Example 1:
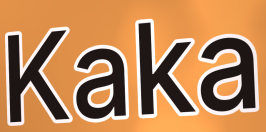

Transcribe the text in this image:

Kaka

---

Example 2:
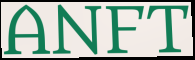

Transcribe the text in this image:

ANFT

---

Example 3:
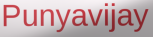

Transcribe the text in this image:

Punyavijay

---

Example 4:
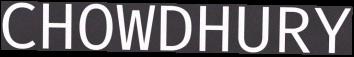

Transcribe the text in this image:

CHOWDHURY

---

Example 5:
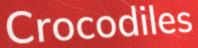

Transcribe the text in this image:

Crocodiles